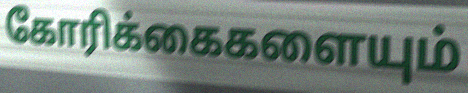
கோரிக்கைகளையும்